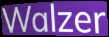
Walzer